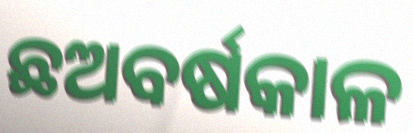
ଛଅବର୍ଷକାଳ